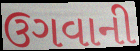
ઉગવાની